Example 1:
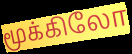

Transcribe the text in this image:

மூக்கிலோ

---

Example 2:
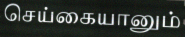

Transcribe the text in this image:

செய்கையானும்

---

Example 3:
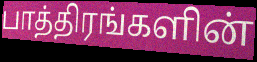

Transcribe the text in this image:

பாத்திரங்களின்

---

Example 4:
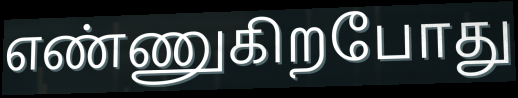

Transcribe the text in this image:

எண்ணுகிறபோது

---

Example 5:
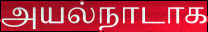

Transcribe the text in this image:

அயல்நாடாக